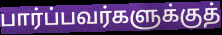
பார்ப்பவர்களுக்குத்